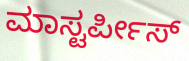
ಮಾಸ್ಟರ್ಪೀಸ್